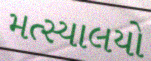
મત્સ્યાલયો